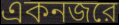
একনজরে